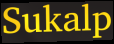
Sukalp